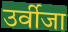
उर्वीजा